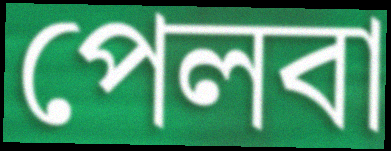
পেলবা